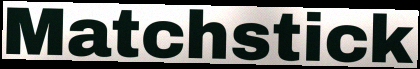
Matchstick